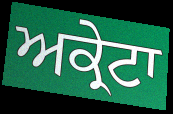
ਅਕ੍ਰੇਟਾ